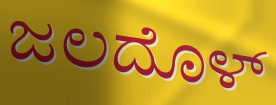
ಜಲದೊಳ್